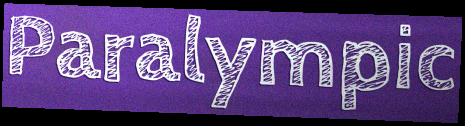
Paralympic